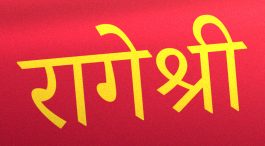
रागेश्री